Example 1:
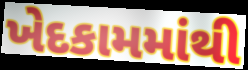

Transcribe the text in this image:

ખેદકામમાંથી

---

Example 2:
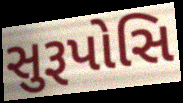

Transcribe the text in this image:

સુરૂપોસિ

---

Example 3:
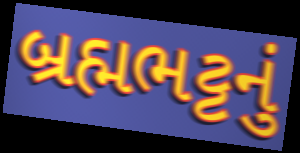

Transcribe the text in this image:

બ્રહ્મભટ્ટનું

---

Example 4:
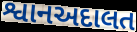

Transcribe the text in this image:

શ્વાનઅદાલત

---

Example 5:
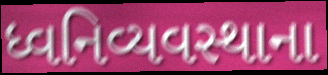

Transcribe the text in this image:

ધ્વનિવ્યવસ્થાના